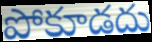
పోకూడదు